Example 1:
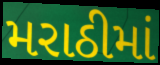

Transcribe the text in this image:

મરાઠીમાં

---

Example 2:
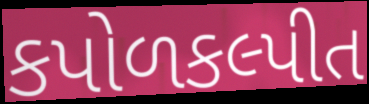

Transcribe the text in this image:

કપોળકલ્પીત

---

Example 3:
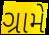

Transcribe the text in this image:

ગ્રામે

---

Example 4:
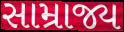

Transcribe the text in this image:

સામ્રાજ્ય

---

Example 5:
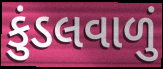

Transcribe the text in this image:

કુંડલવાળું